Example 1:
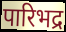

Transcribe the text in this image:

पारिभद्र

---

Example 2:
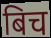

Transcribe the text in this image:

बिच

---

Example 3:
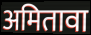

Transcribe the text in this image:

अमितावा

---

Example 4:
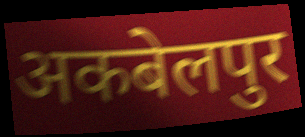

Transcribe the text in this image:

अकबेलपुर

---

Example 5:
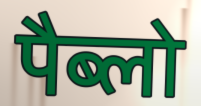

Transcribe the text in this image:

पैब्लो